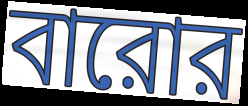
বারোর